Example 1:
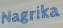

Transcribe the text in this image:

Nagrika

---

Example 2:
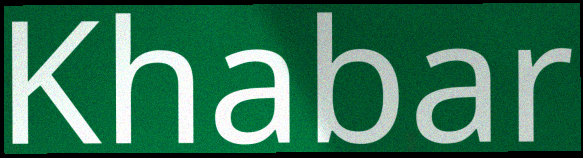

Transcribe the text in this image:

Khabar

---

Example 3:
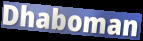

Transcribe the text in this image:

Dhaboman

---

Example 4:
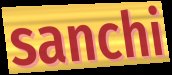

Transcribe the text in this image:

sanchi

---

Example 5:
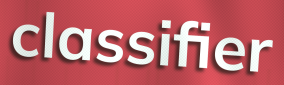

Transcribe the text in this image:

classifier